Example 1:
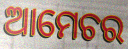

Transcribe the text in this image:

ଆମେଚର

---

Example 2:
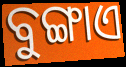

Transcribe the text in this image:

ବୁଙ୍ଗାଏ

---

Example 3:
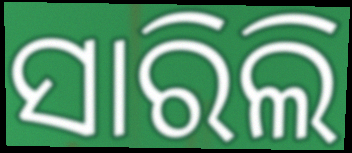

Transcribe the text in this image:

ସାରିଲି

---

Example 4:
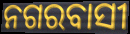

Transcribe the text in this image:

ନଗରବାସୀ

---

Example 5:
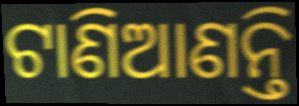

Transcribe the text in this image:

ଟାଣିଆଣନ୍ତି